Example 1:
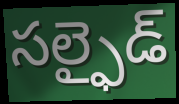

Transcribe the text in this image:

సల్ఫైడ్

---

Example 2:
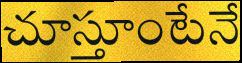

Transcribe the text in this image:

చూస్తూంటేనే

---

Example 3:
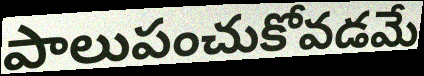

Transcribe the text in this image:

పాలుపంచుకోవడమే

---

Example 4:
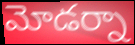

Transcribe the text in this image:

మోడర్నా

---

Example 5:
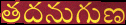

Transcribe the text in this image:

తదనుగుణ